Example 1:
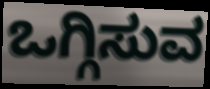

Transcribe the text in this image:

ಒಗ್ಗಿಸುವ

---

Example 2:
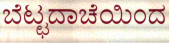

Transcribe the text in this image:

ಬೆಟ್ಟದಾಚೆಯಿಂದ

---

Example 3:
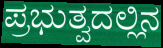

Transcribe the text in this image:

ಪ್ರಭುತ್ವದಲ್ಲಿನ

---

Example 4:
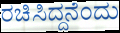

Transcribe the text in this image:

ರಚಿಸಿದ್ದನೆಂದು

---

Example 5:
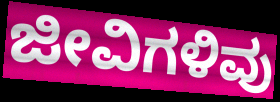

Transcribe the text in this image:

ಜೀವಿಗಳಿವು